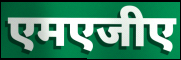
एमएजीए